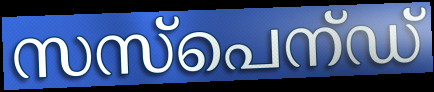
സസ്പെന്ഡ്